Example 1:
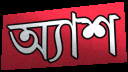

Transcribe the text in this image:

অ্যাশ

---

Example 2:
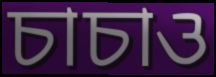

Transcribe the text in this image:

চাচাও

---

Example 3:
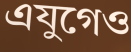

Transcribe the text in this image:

এযুগেও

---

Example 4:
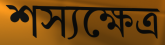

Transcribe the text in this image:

শস্যক্ষেত্র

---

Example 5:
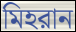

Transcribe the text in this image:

মিহরান